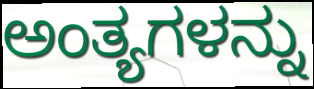
ಅಂತ್ಯಗಳನ್ನು